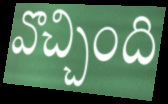
వొచ్చింది